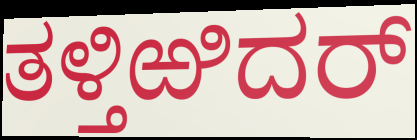
ತಳ್ತಿಱಿದರ್